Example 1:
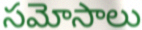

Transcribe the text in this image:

సమోసాలు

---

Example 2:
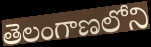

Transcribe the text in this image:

తెలంగాణలోని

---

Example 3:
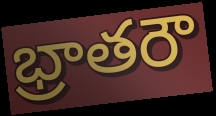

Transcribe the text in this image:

భ్రాతరౌ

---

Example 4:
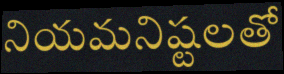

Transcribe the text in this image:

నియమనిష్టలతో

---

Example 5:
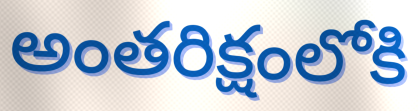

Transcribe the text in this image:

అంతరిక్షంలోకి